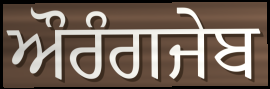
ਔਰੰਗਜੇਬ